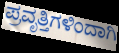
ಪ್ರವೃತ್ತಿಗಳಿಂದಾಗಿ